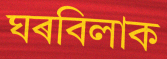
ঘৰবিলাক